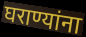
घराण्यांना